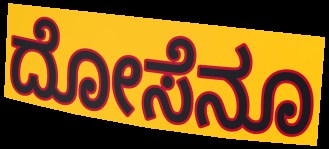
ದೋಸೆನೂ